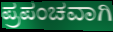
ಪ್ರಪಂಚವಾಗಿ